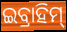
ଇବ୍ରାହିମ୍